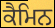
ਕੈਮਿਨ